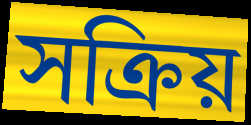
সক্ৰিয়